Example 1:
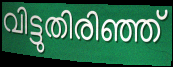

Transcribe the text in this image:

വിട്ടുതിരിഞ്ഞ്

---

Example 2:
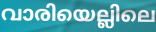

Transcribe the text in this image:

വാരിയെല്ലിലെ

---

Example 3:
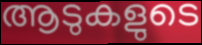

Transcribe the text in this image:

ആടുകളുടെ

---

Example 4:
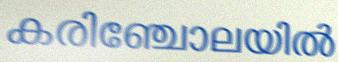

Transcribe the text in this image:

കരിഞ്ചോലയിൽ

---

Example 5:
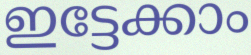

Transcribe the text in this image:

ഇട്ടേക്കാം